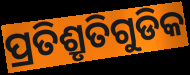
ପ୍ରତିଶ୍ରୃତିଗୁଡିକ